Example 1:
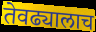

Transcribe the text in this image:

तेवढ्यालाच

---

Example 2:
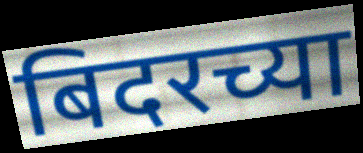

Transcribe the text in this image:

बिदरच्या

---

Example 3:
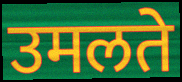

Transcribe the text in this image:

उमलते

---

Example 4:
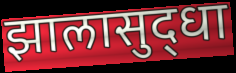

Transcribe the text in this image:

झालासुद्धा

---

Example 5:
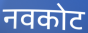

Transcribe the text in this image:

नवकोट